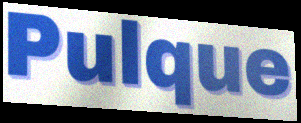
Pulque